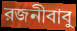
রজনীবাবু